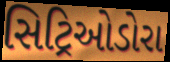
સિટ્રિઓડોરા